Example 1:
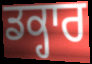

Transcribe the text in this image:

ਡਕ੍ਹਾਰ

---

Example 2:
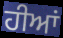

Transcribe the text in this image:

ਹੀਆਂ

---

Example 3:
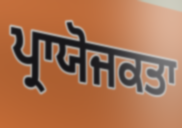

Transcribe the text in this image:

ਪ੍ਰਾਯੋਜਕਤਾ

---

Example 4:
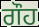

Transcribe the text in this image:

ਗੌਹ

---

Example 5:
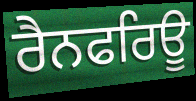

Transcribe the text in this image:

ਰੈਨਫਰਿਊ